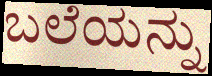
ಬಲೆಯನ್ನು